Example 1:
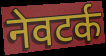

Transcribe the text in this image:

नेवटर्क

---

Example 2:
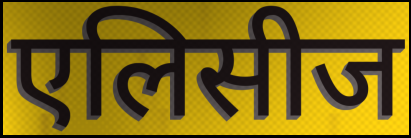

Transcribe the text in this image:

एलिसीज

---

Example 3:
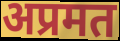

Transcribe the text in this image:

अप्रमत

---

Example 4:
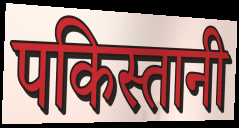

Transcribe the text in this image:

पकिस्तानी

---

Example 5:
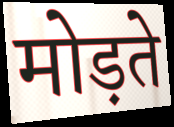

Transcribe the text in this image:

मोड़ते